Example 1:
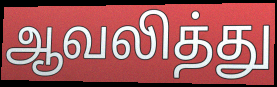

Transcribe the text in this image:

ஆவலித்து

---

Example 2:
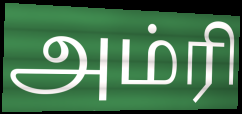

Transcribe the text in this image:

அம்ரி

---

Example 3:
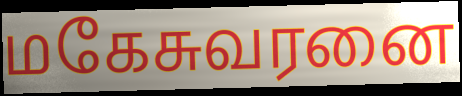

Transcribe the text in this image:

மகேசுவரனை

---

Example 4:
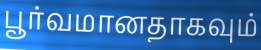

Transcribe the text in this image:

பூர்வமானதாகவும்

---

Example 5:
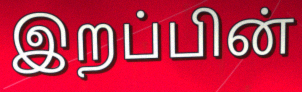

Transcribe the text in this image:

இறப்பின்